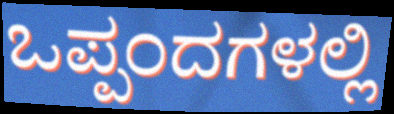
ಒಪ್ಪಂದಗಳಲ್ಲಿ